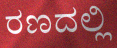
ರಣದಲ್ಲಿ